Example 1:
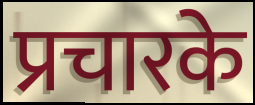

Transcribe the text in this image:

प्रचारके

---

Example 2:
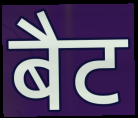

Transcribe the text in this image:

बैट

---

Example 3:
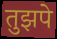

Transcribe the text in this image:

तुझपे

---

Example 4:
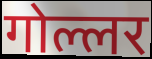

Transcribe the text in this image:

गोल्लर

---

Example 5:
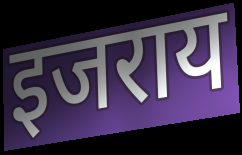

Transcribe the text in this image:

इजराय